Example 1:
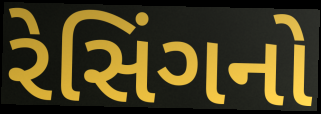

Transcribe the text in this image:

રેસિંગનો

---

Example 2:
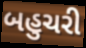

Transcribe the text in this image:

બહુચરી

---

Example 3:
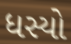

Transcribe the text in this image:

ધસ્યો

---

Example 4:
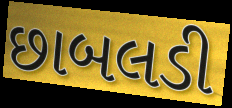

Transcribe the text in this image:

છાબલડી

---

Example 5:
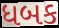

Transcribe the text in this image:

ધબક